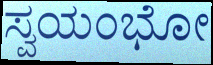
ಸ್ವಯಂಭೋ